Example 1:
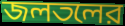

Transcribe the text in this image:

জলতলের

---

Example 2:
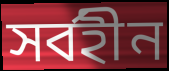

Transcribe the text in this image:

সর্বহীন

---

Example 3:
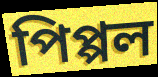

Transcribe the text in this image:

পিপ্পল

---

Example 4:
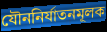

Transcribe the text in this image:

যৌননির্যাতনমূলক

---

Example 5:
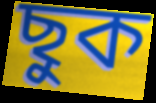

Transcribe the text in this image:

ছুক